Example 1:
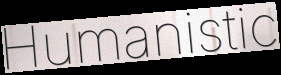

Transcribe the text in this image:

Humanistic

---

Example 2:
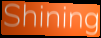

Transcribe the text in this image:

Shining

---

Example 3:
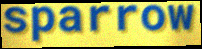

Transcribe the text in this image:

sparrow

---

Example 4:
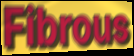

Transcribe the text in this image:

Fibrous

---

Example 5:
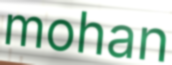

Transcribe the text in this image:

mohan